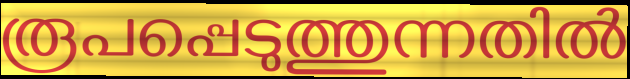
രൂപപ്പെടുത്തുന്നതിൽ